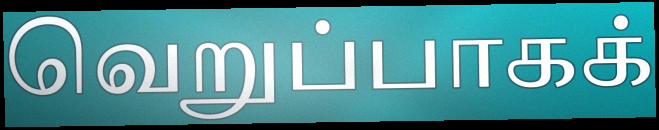
வெறுப்பாகக்